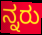
ನ್ನರು